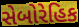
સેબોરેહિક